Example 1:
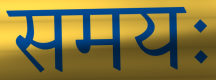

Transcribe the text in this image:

समयः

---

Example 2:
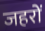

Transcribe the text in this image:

जहरों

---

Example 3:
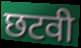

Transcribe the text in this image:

छटवी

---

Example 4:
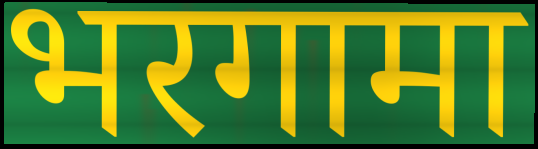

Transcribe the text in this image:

भरगामा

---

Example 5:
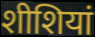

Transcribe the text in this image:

शीशियां